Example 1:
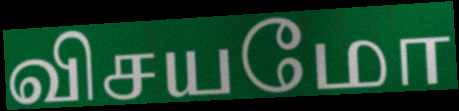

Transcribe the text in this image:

விசயமோ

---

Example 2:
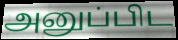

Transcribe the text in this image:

அனுப்பிட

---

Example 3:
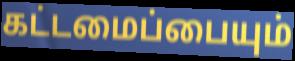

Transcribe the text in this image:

கட்டமைப்பையும்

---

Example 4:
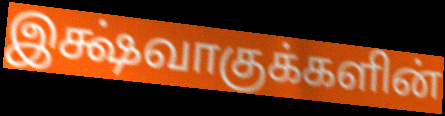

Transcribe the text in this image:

இக்ஷ்வாகுக்களின்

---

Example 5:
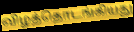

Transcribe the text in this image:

விழத்தொடங்கியது